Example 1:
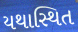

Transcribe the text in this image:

યથાસ્થિત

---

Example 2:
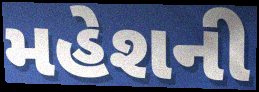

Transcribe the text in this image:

મહેશની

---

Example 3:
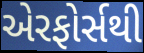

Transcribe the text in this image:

એરફોર્સથી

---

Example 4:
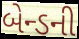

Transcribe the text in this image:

બેન્ડની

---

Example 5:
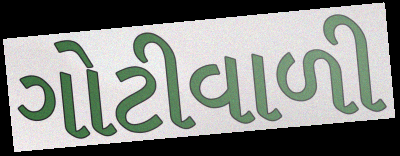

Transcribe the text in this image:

ગોટીવાળી